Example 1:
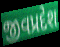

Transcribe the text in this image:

જીવપ્રદેશ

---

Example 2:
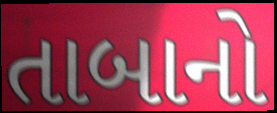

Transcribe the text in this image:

તાબાનો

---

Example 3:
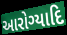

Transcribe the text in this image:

આરોગ્યાદિ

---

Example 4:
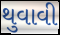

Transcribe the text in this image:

થુવાવી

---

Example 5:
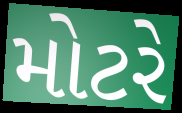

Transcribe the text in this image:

મોટરે